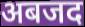
अबजद